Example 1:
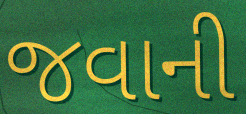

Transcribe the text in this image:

જવાની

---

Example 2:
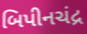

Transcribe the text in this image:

બિપીનચંદ્ર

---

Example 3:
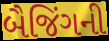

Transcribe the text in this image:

બૈજિંગની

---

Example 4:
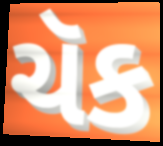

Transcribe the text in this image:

ચૅક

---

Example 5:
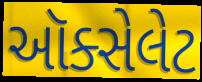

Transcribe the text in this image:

ઑક્સેલેટ